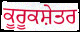
ਕੂਰੂਕਸ਼ੇਤਰ